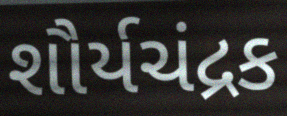
શૌર્યચંદ્રક